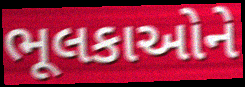
ભૂલકાઓને